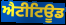
ਐਟੀਟਿਊਡ